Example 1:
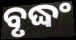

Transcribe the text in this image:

ବୃଦ୍ଧଂ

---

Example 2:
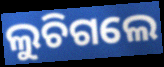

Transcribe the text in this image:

ଲୁଚିଗଲେ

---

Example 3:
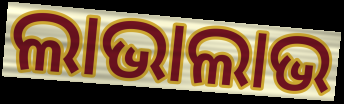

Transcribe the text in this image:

ଲାଭାଲାଭ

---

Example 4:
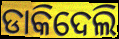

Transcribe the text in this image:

ଡାକିଦେଲି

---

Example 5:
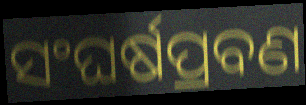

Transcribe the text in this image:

ସଂଘର୍ଷପ୍ରବଣ